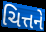
ચિત્તને